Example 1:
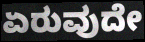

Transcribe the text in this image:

ಏರುವುದೇ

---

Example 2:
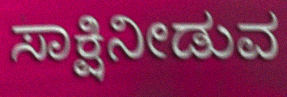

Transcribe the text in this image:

ಸಾಕ್ಷಿನೀಡುವ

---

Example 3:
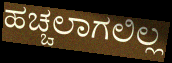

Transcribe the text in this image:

ಹಚ್ಚಲಾಗಲಿಲ್ಲ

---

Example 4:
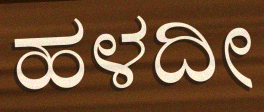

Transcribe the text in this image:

ಹಳದೀ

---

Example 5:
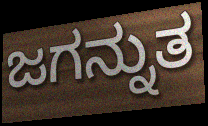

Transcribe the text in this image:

ಜಗನ್ನುತ